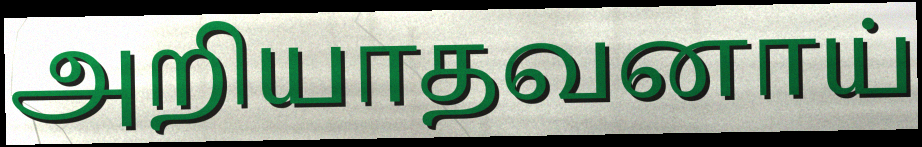
அறியாதவனாய்